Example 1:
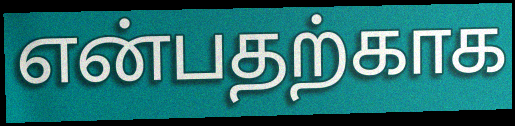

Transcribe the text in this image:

என்பதற்காக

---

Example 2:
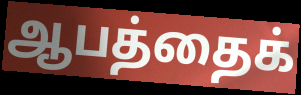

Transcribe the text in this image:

ஆபத்தைக்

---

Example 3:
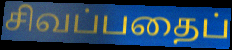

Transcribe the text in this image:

சிவப்பதைப்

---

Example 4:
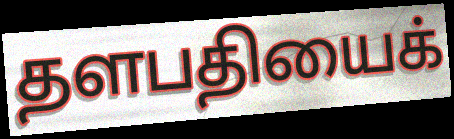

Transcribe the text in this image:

தளபதியைக்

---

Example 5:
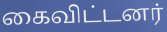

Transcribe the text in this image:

கைவிட்டனர்